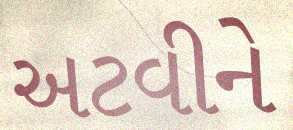
અટવીને